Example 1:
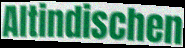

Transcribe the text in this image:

Altindischen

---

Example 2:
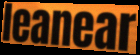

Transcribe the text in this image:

leanear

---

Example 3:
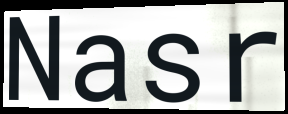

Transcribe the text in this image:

Nasr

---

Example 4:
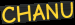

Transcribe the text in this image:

CHANU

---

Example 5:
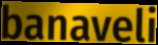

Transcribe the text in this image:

banaveli